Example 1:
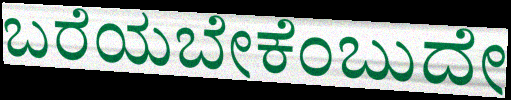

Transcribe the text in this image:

ಬರೆಯಬೇಕೆಂಬುದೇ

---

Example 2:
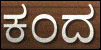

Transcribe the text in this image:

ಕಂದ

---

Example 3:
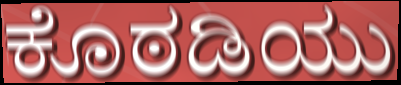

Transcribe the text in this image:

ಕೊಠಡಿಯು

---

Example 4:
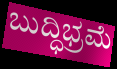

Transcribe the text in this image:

ಬುದ್ಧಿಭ್ರಮೆ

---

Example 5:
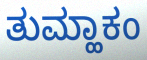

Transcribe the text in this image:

ತುಮ್ಹಾಕಂ